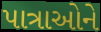
પાત્રાઓને